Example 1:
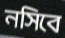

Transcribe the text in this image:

নসিবে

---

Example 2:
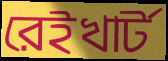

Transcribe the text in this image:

রেইখার্ট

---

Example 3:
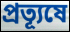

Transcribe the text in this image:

প্রত্যূষে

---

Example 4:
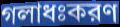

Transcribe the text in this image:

গলাধঃকরণ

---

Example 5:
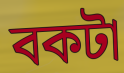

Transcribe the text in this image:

বকটা